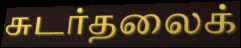
சுடர்தலைக்